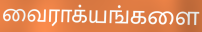
வைராக்யங்களை